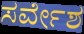
ಸರ್ವೇಶ